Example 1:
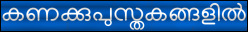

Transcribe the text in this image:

കണക്കുപുസ്തകങ്ങളിൽ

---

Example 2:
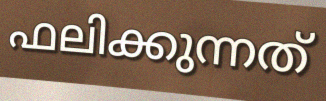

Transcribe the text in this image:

ഫലിക്കുന്നത്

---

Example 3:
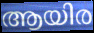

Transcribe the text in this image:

ആയിര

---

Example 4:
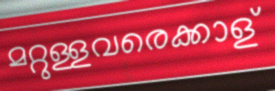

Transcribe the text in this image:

മറ്റുള്ളവരെക്കാള്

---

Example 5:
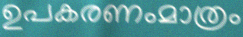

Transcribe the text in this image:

ഉപകരണംമാത്രം